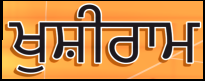
ਖੁਸ਼ੀਰਾਮ